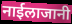
नाईलाजानी